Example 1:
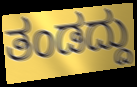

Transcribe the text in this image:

ತಂಡದ್ದು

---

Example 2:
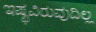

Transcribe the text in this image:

ಇಷ್ಟವಿರುವುದಿಲ್ಲ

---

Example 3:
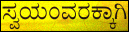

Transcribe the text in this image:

ಸ್ವಯಂವರಕ್ಕಾಗಿ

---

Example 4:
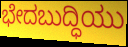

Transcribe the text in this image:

ಭೇದಬುದ್ಧಿಯು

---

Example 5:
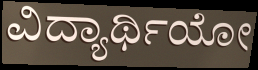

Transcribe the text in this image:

ವಿದ್ಯಾರ್ಥಿಯೋ